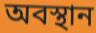
অবস্থান